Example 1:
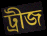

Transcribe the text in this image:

ট্রীজ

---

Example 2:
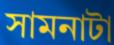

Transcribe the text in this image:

সামনাটা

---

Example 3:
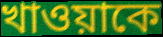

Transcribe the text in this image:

খাওয়াকে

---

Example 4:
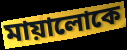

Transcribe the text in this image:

মায়ালোকে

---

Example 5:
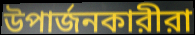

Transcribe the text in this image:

উপার্জনকারীরা